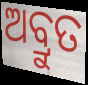
ଅବ୍ରୁତ